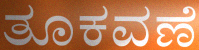
ತೂಕವಣೆ